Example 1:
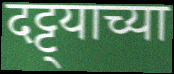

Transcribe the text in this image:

दट्ट्याच्या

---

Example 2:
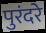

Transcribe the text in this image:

पुरंदरे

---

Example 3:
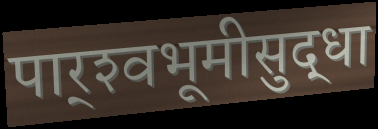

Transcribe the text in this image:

पार्श्वभूमीसुद्धा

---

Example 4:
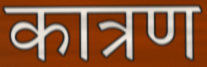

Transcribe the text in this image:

कात्रण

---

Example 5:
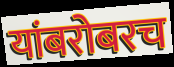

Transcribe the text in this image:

यांबरोबरच